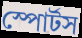
স্পোর্টস